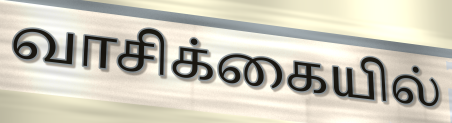
வாசிக்கையில்